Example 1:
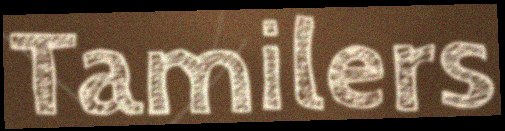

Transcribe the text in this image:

Tamilers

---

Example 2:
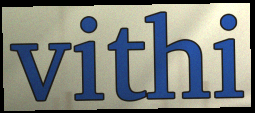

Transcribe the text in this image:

vithi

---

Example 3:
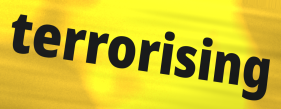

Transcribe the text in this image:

terrorising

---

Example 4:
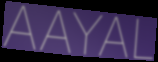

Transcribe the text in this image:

AAYAL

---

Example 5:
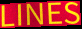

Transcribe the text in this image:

LINES